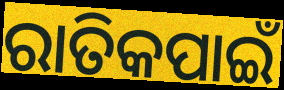
ରାତିକପାଇଁ